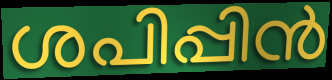
ശപിപ്പിൻ